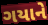
ગયાને